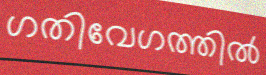
ഗതിവേഗത്തിൽ